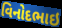
વિનોદભાઇ